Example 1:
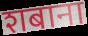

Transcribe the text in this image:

शबाना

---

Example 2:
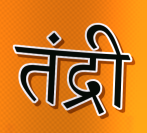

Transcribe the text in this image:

तंद्री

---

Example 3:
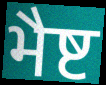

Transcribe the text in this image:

भैष्ट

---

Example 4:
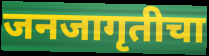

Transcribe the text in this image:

जनजागृतीचा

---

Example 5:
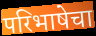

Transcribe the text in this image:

परिभाषेचा